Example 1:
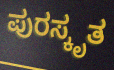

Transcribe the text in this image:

ಪುರಸ್ಕೃತ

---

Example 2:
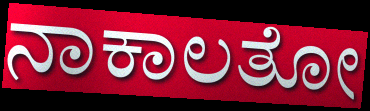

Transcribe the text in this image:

ನಾಕಾಲತೋ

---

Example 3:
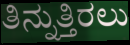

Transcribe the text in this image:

ತಿನ್ನುತ್ತಿರಲು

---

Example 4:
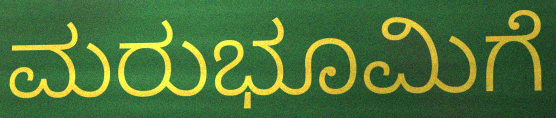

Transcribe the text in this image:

ಮರುಭೂಮಿಗೆ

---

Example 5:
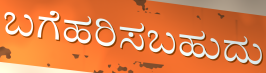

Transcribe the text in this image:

ಬಗೆಹರಿಸಬಹುದು